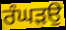
ਰੰਘੜਉ